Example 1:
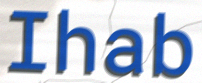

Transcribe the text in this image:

Ihab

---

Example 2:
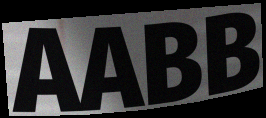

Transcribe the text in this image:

AABB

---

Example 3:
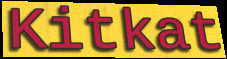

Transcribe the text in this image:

Kitkat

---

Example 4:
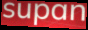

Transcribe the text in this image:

supan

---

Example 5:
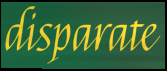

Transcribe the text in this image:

disparate